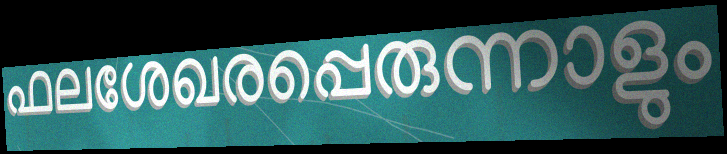
ഫലശേഖരപ്പെരുന്നാളും